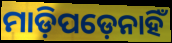
ମାଡ଼ିପଡ଼େନାହିଁ